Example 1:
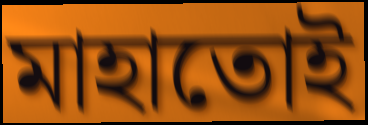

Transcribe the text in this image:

মাহাতোই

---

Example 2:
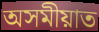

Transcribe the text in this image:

অসমীয়াত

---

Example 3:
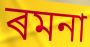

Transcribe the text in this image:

ৰমনা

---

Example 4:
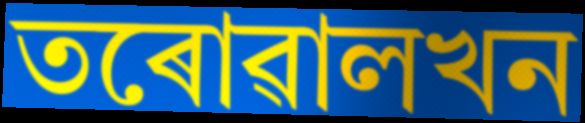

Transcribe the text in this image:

তৰোৱালখন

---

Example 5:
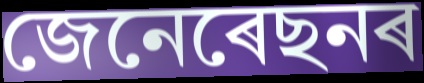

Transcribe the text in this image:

জেনেৰেছনৰ